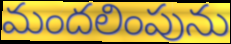
మందలింపును